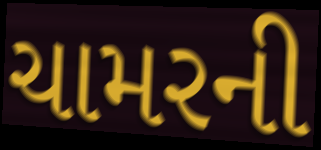
ચામરની